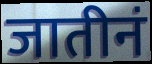
जातीनं